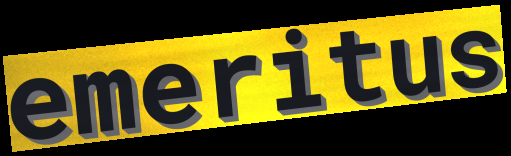
emeritus